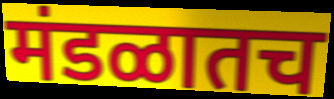
मंडळातच